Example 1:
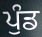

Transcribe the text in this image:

ਪੁੰਡ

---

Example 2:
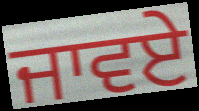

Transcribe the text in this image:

ਜਾਵਏ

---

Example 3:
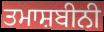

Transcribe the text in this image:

ਤਮਾਸ਼ਬੀਨੀ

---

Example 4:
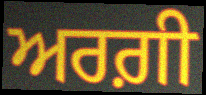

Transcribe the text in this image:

ਅਰਗ਼ੀ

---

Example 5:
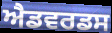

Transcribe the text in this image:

ਐਡਵਰਡਸ